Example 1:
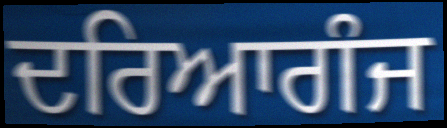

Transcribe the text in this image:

ਦਰਿਆਗੰਜ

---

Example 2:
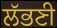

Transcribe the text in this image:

ਲੱਭਣੀ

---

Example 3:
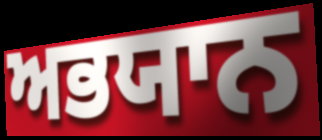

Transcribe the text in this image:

ਅਭਯਾਨ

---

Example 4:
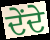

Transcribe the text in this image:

ਦੇਂਦੇ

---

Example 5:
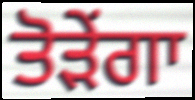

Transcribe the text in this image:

ਤੋੜੇਂਗਾ